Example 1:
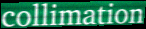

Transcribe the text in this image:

collimation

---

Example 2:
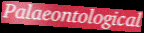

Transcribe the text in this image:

Palaeontological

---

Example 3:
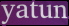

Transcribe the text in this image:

yatun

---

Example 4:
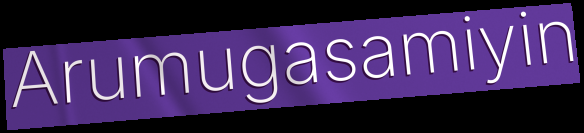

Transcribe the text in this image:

Arumugasamiyin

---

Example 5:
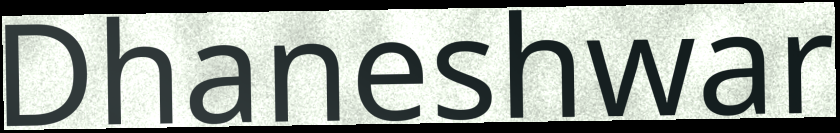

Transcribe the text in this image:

Dhaneshwar